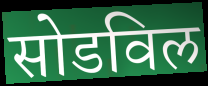
सोडविल